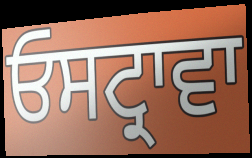
ਓਸਟ੍ਰਾਵਾ